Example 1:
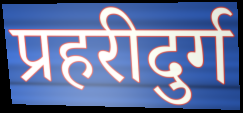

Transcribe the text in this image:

प्रहरीदुर्ग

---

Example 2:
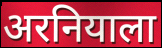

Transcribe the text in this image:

अरनियाला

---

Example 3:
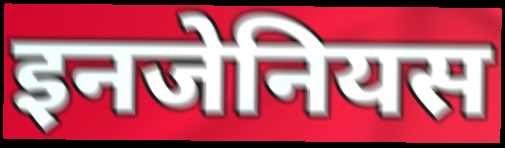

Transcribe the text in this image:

इनजेनियस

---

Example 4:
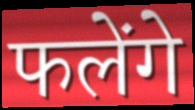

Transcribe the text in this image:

फलेंगे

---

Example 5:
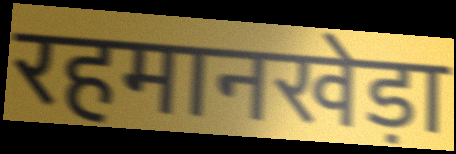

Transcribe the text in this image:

रहमानखेड़ा